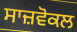
ਸਾਜ਼ਵੋਕਲ